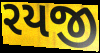
રયજી